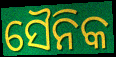
ସୈନିକ